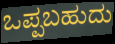
ಒಪ್ಪಬಹುದು